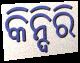
କିନ୍ଦିରି